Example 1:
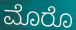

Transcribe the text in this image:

ಮೊರೊ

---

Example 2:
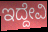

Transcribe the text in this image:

ಇದ್ದೇವಿ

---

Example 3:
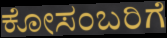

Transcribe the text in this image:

ಕೋಸಂಬರಿಗೆ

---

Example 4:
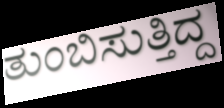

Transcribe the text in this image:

ತುಂಬಿಸುತ್ತಿದ್ದ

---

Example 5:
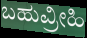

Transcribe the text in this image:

ಬಹುವ್ರೀಹಿ